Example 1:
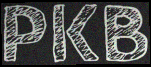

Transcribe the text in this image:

PKB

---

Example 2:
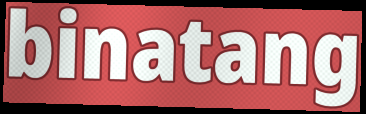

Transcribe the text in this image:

binatang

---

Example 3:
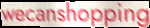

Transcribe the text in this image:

wecanshopping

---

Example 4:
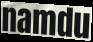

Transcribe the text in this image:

namdu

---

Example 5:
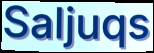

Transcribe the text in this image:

Saljuqs